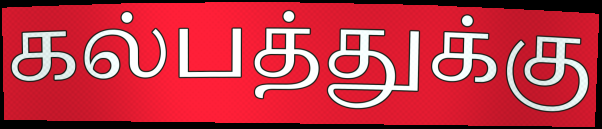
கல்பத்துக்கு